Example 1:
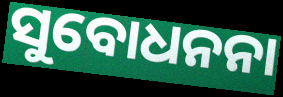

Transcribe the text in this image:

ସୁବୋଧନନା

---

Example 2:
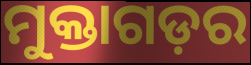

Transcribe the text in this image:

ମୁକ୍ତାଗଡ଼ର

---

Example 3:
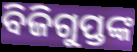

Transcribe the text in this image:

ବିଜିଗୁପ୍ତଙ୍କ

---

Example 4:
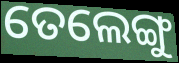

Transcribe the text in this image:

ତେଲେଙ୍ଗୁ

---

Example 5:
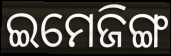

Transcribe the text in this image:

ଇମେଜିଙ୍ଗ